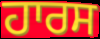
ਹਾਰਸ